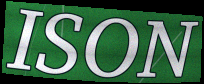
ISON